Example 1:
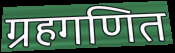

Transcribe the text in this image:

ग्रहगणित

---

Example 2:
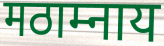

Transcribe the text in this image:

मठाम्नाय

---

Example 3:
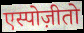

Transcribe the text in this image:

एस्पोज़ीतो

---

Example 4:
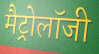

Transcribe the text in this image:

मैट्रोलॉजी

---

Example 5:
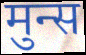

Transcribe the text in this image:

मुन्स